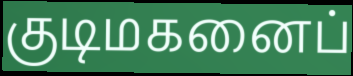
குடிமகனைப்